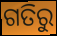
ଗତିରୁ